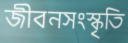
জীবনসংস্কৃতি